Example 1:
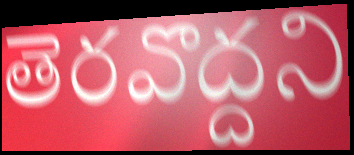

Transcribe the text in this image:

తెరవొద్దని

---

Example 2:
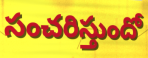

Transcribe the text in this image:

సంచరిస్తుందో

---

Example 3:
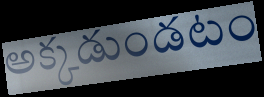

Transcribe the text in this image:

అక్కడుండటం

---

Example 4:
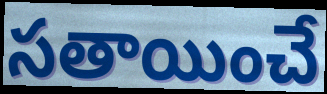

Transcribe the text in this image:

సతాయించే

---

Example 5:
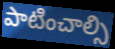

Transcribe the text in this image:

పాటించాల్సి